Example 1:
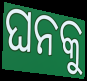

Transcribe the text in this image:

ଘନକୁ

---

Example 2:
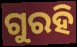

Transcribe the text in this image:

ଗୁରହି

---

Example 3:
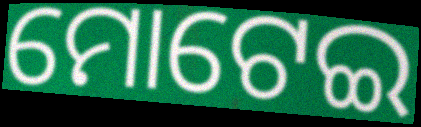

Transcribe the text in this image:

ମୋଟେଇ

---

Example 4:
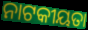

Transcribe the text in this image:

ନାଟକୀୟତା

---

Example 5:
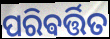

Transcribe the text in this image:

ପରିଵର୍ତ୍ତିତ